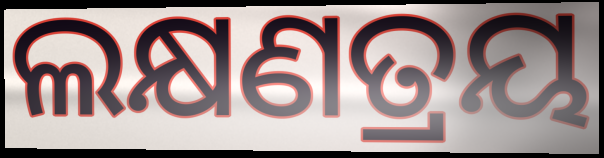
ଲକ୍ଷଣତ୍ରୟ